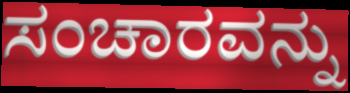
ಸಂಚಾರವನ್ನು